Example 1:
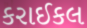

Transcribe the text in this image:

કરાઈકલ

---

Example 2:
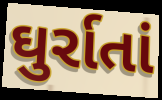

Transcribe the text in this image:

ઘુર્રાતાં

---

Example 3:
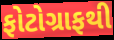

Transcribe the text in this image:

ફોટોગ્રાફથી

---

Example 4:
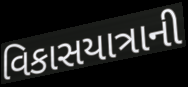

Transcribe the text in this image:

વિકાસયાત્રાની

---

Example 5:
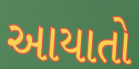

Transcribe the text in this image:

આયાતો